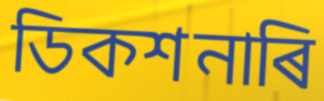
ডিকশনাৰি